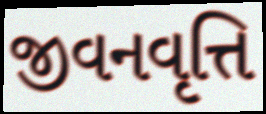
જીવનવૃત્તિ